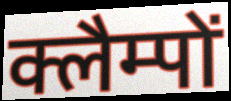
क्लैम्पों